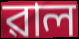
ৱাল